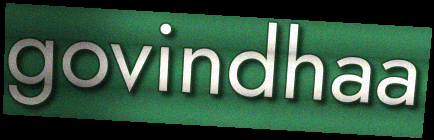
govindhaa